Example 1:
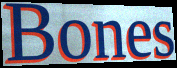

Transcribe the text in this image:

Bones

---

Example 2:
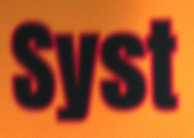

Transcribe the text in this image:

Syst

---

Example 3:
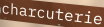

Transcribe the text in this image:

charcuterie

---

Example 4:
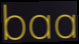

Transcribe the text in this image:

baa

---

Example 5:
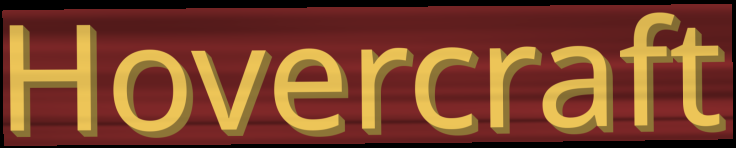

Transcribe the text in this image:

Hovercraft